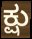
ಕ್ಷು